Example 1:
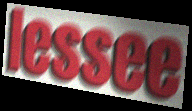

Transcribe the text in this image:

lessee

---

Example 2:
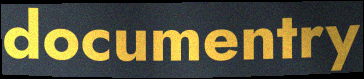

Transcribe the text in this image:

documentry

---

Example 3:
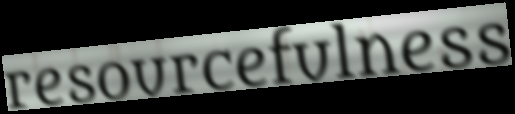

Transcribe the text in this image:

resourcefulness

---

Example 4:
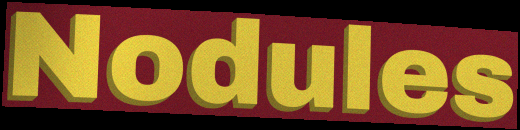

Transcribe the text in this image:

Nodules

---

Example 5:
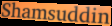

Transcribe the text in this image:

Shamsuddin